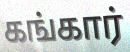
கங்கார்